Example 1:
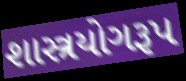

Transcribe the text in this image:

શાસ્ત્રયોગરૂપ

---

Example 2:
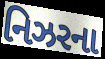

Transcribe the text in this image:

નિઝરના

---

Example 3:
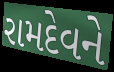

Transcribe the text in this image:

રામદેવને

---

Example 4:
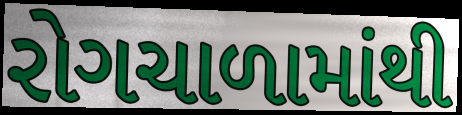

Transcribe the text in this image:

રોગચાળામાંથી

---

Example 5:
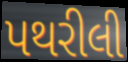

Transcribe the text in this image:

પથરીલી